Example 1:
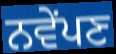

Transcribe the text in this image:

ਨਵੇਂਪਣ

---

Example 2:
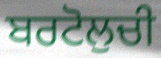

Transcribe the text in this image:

ਬਰਟੋਲੁਚੀ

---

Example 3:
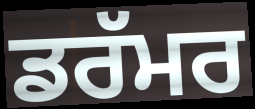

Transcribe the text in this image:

ਡਰੱਮਰ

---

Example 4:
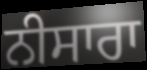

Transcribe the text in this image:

ਨੀਸਾਰਾ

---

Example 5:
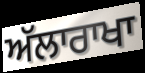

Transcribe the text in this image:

ਅੱਲਾਰਾਖਾ